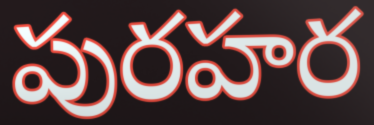
పురహర